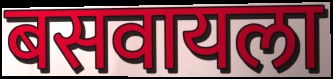
बसवायला